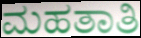
ಮಹತಾತಿ